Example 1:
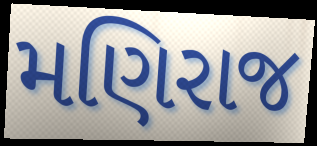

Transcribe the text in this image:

મણિરાજ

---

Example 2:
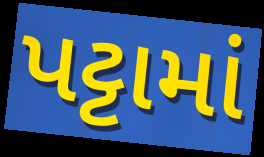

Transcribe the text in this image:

પટ્ટામાં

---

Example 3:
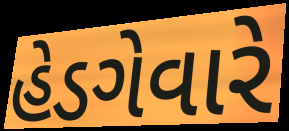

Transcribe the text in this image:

હેડગેવારે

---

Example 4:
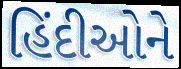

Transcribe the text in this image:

હિંદીઓને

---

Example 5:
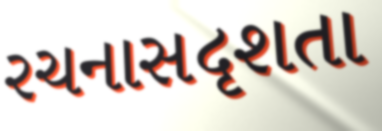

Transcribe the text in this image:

રચનાસદૃશતા